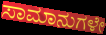
ಸಾಮಾನುಗಳೇ